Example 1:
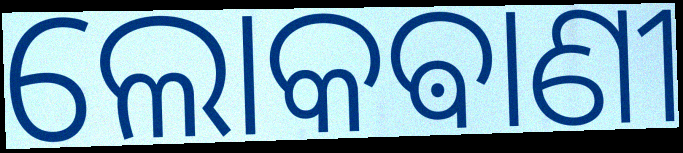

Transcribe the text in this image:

ଲୋକଵାଣୀ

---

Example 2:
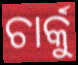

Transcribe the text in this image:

ଚାର୍କୁ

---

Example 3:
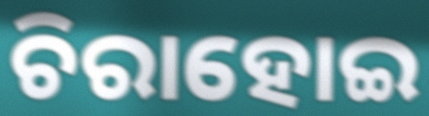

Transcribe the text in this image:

ଚିରାହୋଇ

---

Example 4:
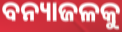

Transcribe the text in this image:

ବନ୍ୟାଜଳକୁ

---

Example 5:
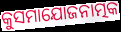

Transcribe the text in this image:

କୁସମାଯୋଜନାତ୍ମକ